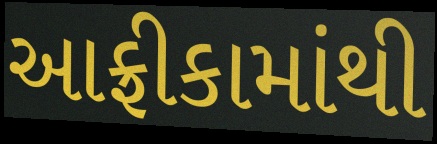
આફ્રીકામાંથી